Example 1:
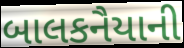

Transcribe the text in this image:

બાલકનૈયાની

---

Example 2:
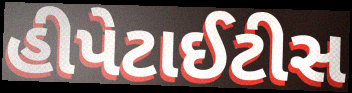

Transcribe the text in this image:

હીપેટાઈટીસ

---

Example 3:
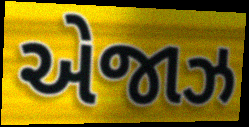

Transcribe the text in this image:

એજાઝ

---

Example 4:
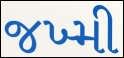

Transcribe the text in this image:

જખ્મી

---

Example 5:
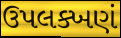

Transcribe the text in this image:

ઉપલક્ખણં